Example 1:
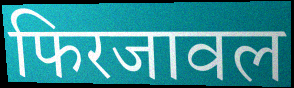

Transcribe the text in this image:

फिरजावल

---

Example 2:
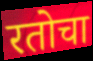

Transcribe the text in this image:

रतोचा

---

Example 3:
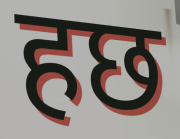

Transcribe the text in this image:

हछ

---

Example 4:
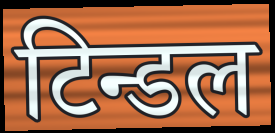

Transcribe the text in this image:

टिन्डल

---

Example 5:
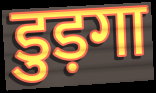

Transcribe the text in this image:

डुड़गा